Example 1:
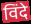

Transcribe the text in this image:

विंदे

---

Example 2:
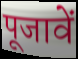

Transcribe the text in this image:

पूजावें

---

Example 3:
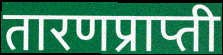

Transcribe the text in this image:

तारणप्राप्ती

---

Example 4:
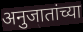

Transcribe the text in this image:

अनुजातांच्या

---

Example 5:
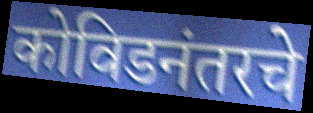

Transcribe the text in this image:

कोविडनंतरचे